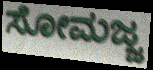
ಸೋಮಜ್ಜ